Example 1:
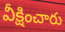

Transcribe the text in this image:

వీక్షించారు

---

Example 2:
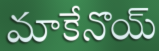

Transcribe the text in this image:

మాకేనొయ్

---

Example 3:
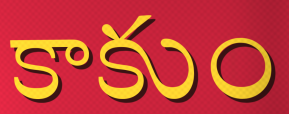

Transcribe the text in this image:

కాకుం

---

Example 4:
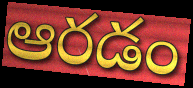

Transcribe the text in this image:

ఆరడం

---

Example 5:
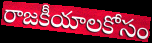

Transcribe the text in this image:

రాజకీయాలకోసం